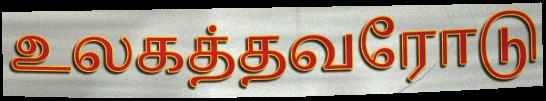
உலகத்தவரோடு